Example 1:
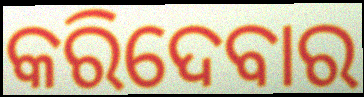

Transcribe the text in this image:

କରିଦେବାର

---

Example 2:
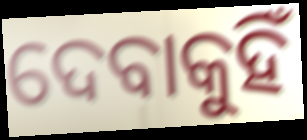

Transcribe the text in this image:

ଦେବାକୁହିଁ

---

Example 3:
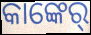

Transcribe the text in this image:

କାଙ୍କେର୍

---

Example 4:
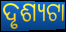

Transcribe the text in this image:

ଦୃଶ୍ୟଟା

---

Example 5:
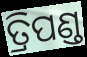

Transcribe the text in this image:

ତ୍ରିପଣ୍ଡ